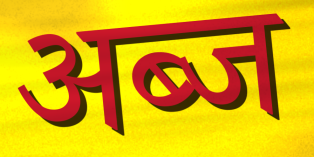
अब्ज